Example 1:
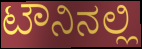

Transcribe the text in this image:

ಟೌನಿನಲ್ಲಿ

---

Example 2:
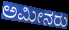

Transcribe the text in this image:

ಅಮೀನರು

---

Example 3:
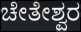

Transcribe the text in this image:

ಚೇತೇಶ್ವರ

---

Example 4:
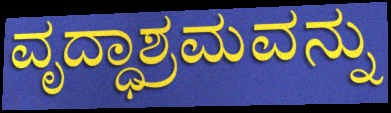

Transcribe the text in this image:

ವೃದ್ಧಾಶ್ರಮವನ್ನು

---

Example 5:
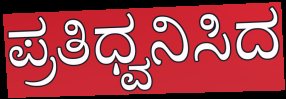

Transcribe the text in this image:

ಪ್ರತಿಧ್ವನಿಸಿದ